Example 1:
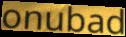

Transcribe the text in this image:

onubad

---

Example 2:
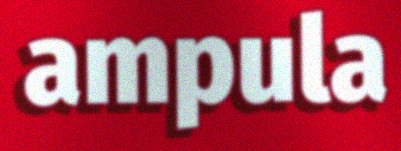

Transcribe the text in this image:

ampula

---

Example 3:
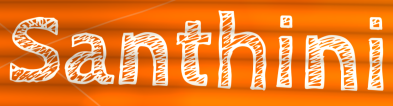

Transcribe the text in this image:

Santhini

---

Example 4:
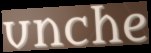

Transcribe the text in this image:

unche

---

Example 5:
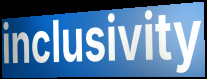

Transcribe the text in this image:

inclusivity